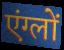
एंग्लों